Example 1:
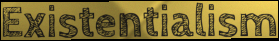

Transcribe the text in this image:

Existentialism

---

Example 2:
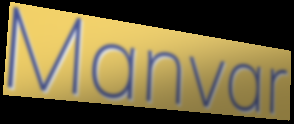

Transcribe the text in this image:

Manvar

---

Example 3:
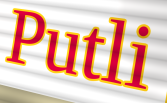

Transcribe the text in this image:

Putli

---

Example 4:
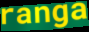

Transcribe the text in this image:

ranga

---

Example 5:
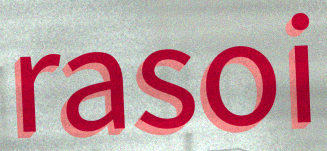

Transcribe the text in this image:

rasoi